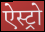
ऐस्ट्रो